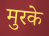
मुरके